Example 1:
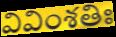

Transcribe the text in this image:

వివింశతిః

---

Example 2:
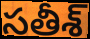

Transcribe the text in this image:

సతీశ్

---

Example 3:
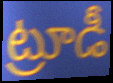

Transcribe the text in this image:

ట్రూడీ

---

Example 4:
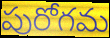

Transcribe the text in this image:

పురోగమ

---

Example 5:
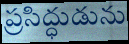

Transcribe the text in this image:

ప్రసిద్ధుడును